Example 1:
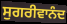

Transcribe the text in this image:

ਸੁਗਰੀਵਾਨੰਦ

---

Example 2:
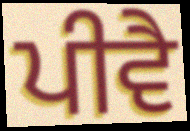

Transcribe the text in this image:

ਪੀਵੈ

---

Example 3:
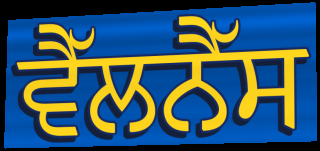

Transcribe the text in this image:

ਵੈੱਲਨੈੱਸ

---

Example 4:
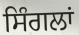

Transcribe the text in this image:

ਸਿੰਗਲਾਂ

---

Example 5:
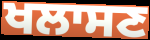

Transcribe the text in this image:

ਖਲਾਸਣ